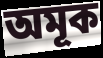
অমূক